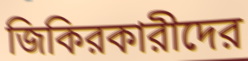
জিকিরকারীদের